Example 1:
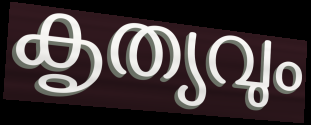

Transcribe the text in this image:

കൃത്യവും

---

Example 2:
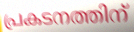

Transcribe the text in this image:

പ്രകടനത്തിന്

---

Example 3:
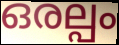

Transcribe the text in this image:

ഒരല്പം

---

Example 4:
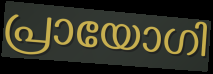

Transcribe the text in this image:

പ്രായോഗി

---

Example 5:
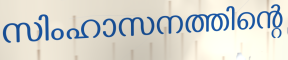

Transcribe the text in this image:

സിംഹാസനത്തിന്റെ